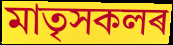
মাতৃসকলৰ